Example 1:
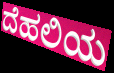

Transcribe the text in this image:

ದೆಹಲಿಯ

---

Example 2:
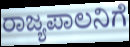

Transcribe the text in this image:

ರಾಜ್ಯಪಾಲನಿಗೆ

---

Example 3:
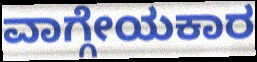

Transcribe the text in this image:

ವಾಗ್ಗೇಯಕಾರ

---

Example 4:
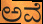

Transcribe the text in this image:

ಅವೆ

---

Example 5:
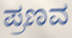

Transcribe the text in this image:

ಪ್ರಣವ